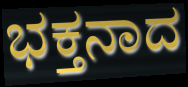
ಭಕ್ತನಾದ